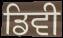
ਡਿਵੀ